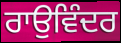
ਰਾਉਵਿੰਦਰ